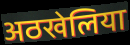
अठखेलिया